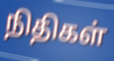
நிதிகள்